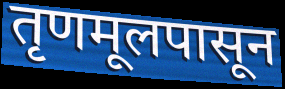
तृणमूलपासून